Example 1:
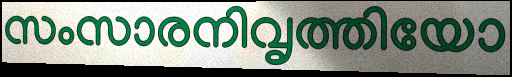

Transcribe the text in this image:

സംസാരനിവൃത്തിയോ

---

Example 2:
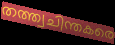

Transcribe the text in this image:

തത്ത്വചിന്തകരെ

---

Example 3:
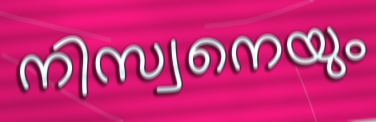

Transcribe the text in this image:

നിസ്വനെയും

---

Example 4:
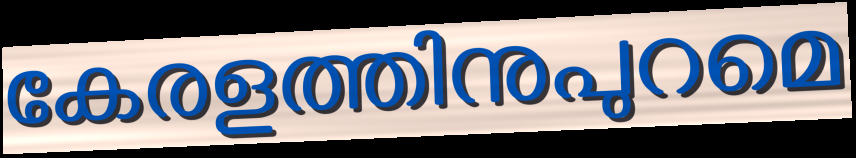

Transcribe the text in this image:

കേരളത്തിനുപുറമെ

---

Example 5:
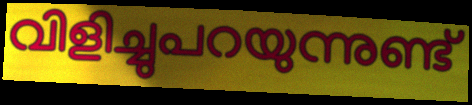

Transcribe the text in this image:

വിളിച്ചുപറയുന്നുണ്ട്